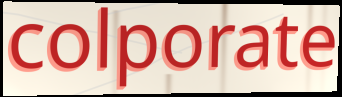
colporate